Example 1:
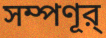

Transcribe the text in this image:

সম্পণূর্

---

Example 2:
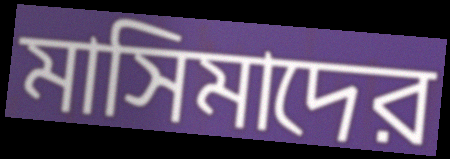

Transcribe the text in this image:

মাসিমাদের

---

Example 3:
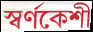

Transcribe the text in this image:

স্বর্ণকেশী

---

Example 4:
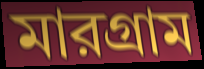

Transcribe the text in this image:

মারগ্রাম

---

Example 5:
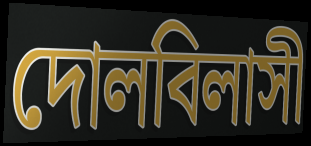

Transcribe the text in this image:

দোলবিলাসী